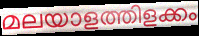
മലയാളത്തിളക്കം